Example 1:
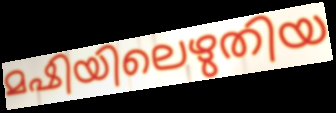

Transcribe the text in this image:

മഷിയിലെഴുതിയ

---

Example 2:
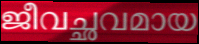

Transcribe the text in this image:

ജീവച്ഛവമായ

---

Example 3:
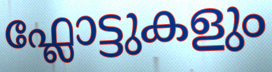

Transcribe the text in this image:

ഫ്ലോട്ടുകളും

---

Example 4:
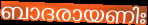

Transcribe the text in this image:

ബാദരായണിഃ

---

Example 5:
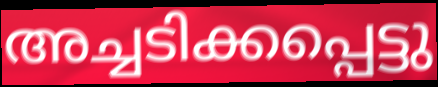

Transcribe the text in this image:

അച്ചടിക്കപ്പെട്ടു